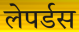
लेपर्डस